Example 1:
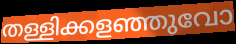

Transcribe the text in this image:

തള്ളിക്കളഞ്ഞുവോ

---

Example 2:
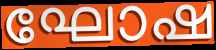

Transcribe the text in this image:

ഘോഷ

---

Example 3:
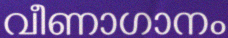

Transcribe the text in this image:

വീണാഗാനം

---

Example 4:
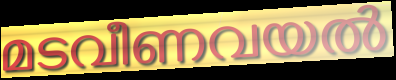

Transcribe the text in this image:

മടവീണവയൽ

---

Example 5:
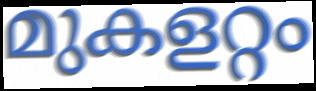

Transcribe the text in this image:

മുകളറ്റം